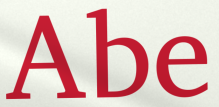
Abe